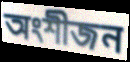
অংশীজন